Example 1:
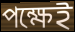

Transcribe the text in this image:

পক্ষেই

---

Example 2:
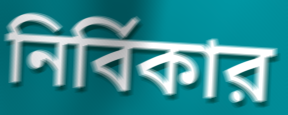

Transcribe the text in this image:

নির্বিকার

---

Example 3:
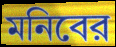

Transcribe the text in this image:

মনিবের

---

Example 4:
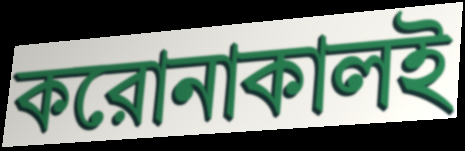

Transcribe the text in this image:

করোনাকালই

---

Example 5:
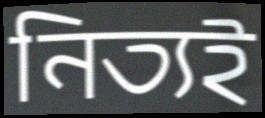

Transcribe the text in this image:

নিত্যই